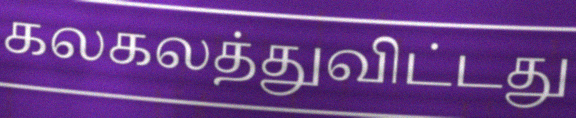
கலகலத்துவிட்டது